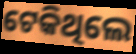
ଟେକିଥିଲେ